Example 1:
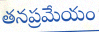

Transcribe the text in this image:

తనప్రమేయం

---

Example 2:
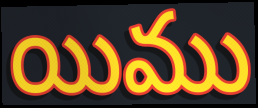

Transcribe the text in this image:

యిము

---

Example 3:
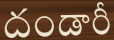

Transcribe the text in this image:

దండారీ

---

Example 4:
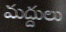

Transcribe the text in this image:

మద్దులు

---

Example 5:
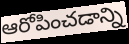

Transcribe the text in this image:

ఆరోపించడాన్ని